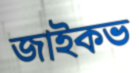
জাইকভ